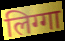
लिग्गा